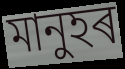
মানুহৰ